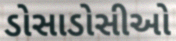
ડોસાડોસીઓ